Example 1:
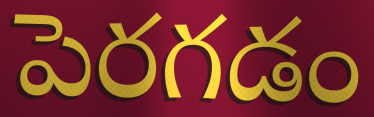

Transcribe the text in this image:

పెరగడం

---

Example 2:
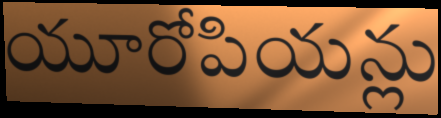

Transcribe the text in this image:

యూరోపియన్లు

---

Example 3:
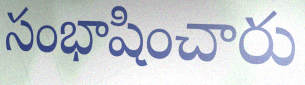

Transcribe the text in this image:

సంభాషించారు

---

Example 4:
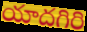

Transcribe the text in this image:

యాదగిరి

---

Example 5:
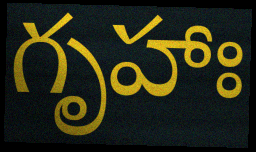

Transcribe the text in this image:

గృహాః